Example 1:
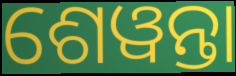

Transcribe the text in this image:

ଶେୱନ୍ତା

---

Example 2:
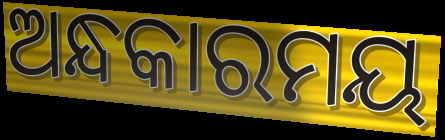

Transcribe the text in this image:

ଅନ୍ଧକାରମୟ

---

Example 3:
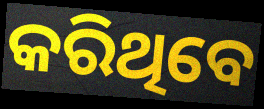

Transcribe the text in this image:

କରିଥିବେ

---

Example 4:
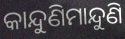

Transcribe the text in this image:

କାନ୍ଦୁଣିମାନ୍ଦୁଣି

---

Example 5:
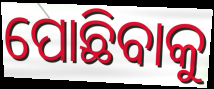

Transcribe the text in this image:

ପୋଛିବାକୁ